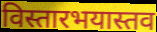
विस्तारभयास्तव